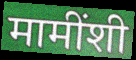
मामींशी